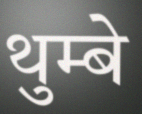
थुम्बे